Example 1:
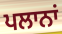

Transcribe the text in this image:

ਪਲਾਨਾਂ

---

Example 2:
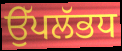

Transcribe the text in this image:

ਉੱਪਲੱਭਧ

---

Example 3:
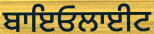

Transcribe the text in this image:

ਬਾਇਓਲਾਈਟ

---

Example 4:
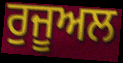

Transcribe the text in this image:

ਰੁਜੂਅਲ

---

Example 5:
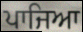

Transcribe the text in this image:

ਪਾਜਿਆ